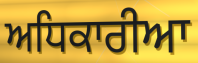
ਅਧਿਕਾਰੀਆ